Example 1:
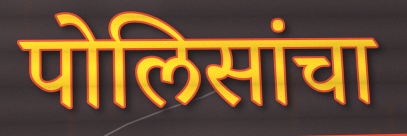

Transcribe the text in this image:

पोलिसांचा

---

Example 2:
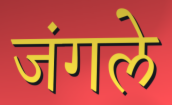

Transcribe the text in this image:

जंगले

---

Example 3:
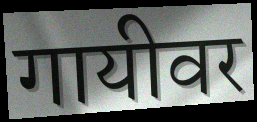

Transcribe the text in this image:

गायीवर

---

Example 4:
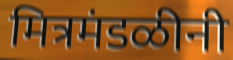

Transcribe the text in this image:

मित्रमंडळीनी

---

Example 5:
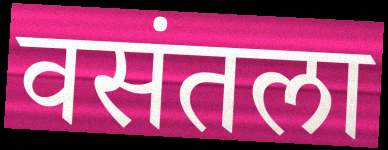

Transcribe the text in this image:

वसंतला